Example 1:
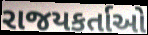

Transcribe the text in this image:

રાજયકર્તાઓ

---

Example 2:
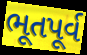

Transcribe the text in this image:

ભૂતપૂર્વ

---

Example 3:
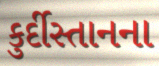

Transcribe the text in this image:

કુર્દીસ્તાનના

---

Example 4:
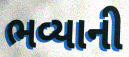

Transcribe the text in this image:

ભવ્યાની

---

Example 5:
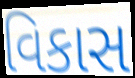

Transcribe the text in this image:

વિકાસ